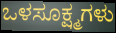
ಒಳಸೂಕ್ಷ್ಮಗಳು